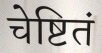
चेष्टितं